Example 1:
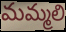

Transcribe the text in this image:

మమ్మలి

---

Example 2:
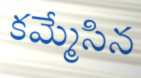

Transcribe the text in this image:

కమ్మేసిన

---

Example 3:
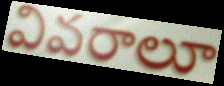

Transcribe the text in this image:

వివరాలూ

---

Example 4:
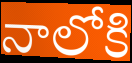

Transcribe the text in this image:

నాలోకి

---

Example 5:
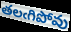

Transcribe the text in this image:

తలఁగిపోవు